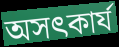
অসৎকার্য